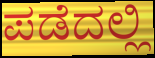
ಪಡೆದಲ್ಲಿ